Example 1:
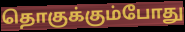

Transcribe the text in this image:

தொகுக்கும்போது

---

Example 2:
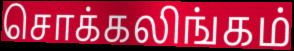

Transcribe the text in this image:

சொக்கலிங்கம்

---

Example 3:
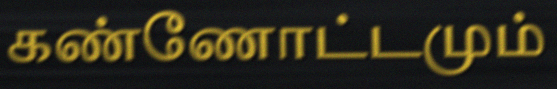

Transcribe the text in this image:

கண்ணோட்டமும்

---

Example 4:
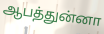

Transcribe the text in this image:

ஆபத்துன்னா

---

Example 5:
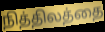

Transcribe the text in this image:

நித்திலத்தை